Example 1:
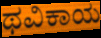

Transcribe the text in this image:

ಥವಿಕಾಯ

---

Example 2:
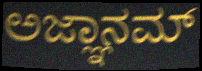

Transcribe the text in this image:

ಅಜ್ಞಾನಮ್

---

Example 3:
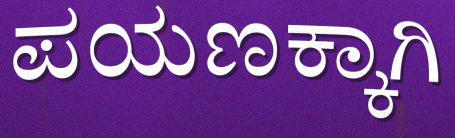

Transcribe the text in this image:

ಪಯಣಕ್ಕಾಗಿ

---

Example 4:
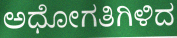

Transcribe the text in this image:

ಅಧೋಗತಿಗಿಳಿದ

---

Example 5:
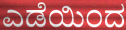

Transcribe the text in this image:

ಎಡೆಯಿಂದ